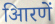
आिरणें